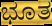
ಭೂತ